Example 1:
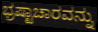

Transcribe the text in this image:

ಭ್ರಷ್ಟಾಚಾರವನ್ನು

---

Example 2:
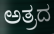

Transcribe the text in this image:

ಅತ್ರದ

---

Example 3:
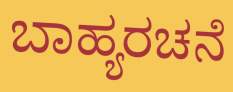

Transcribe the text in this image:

ಬಾಹ್ಯರಚನೆ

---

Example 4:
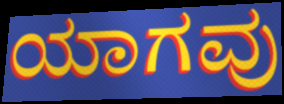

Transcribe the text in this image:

ಯಾಗವು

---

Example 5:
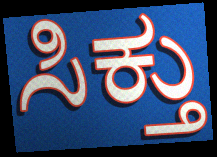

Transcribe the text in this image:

ಸಿಕ್ತು